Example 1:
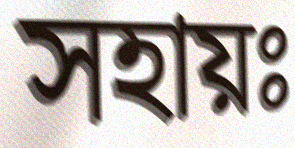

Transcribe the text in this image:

সহায়ঃ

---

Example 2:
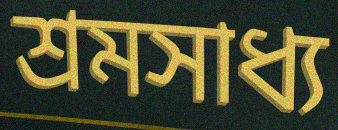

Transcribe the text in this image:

শ্ৰমসাধ্য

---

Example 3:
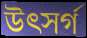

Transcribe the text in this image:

উৎসৰ্গ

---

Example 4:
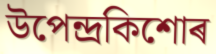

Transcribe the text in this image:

উপেন্দ্ৰকিশোৰ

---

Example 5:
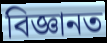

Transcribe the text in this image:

বিজ্ঞানত